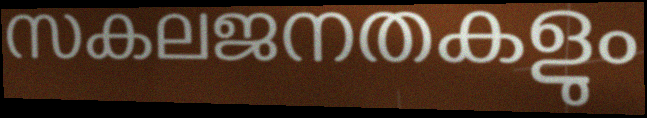
സകലജനതകളും